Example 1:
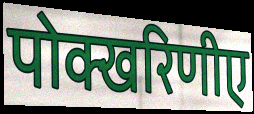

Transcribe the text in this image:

पोक्खरिणीए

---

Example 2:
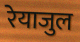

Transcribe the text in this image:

रेयाजुल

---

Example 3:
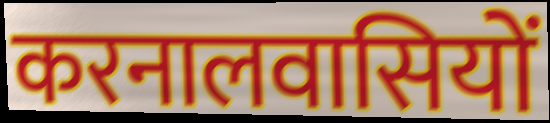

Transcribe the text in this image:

करनालवासियों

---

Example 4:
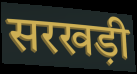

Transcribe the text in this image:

सरखड़ी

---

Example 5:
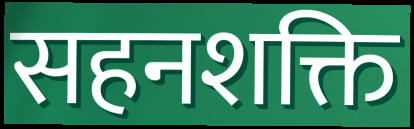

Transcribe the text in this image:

सहनशक्ति